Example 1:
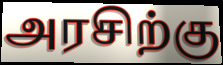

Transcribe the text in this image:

அரசிற்கு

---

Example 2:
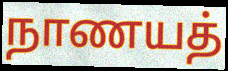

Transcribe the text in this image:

நாணயத்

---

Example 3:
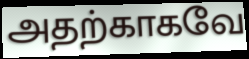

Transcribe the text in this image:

அதற்காகவே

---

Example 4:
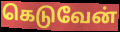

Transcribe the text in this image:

கெடுவேன்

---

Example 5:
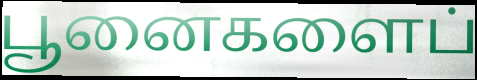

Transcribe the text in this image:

பூனைகளைப்